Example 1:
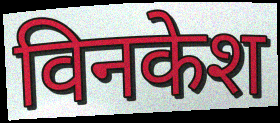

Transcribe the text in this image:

विनकेश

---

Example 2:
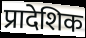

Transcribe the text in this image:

प्रादेशिक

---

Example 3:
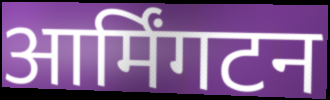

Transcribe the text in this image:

आर्मिंगटन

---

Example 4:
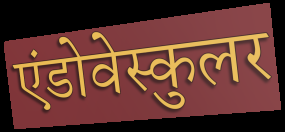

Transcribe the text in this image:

एंडोवेस्कुलर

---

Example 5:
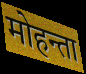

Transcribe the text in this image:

मोहन्ता